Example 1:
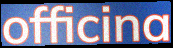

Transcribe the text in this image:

officina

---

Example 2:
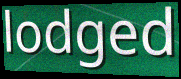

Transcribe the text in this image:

lodged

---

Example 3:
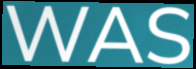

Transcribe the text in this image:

WAS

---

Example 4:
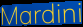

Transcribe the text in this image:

Mardini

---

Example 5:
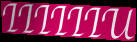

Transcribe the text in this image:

IIIIIIU